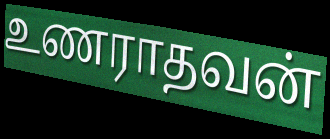
உணராதவன்